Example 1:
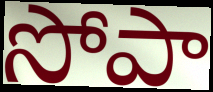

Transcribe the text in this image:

సోపా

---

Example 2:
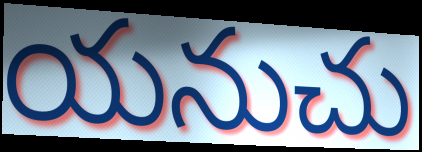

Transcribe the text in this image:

యనుచు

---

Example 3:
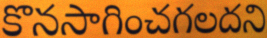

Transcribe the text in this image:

కొనసాగించగలదని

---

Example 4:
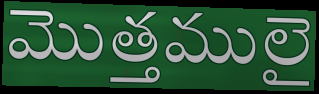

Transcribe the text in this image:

మొత్తములై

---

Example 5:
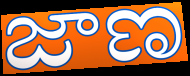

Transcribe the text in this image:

జాణ